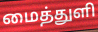
மைத்துளி